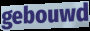
gebouwd